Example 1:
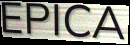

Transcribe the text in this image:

EPICA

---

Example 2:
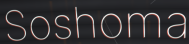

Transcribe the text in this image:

Soshoma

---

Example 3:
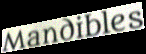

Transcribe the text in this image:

Mandibles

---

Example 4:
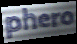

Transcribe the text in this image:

phero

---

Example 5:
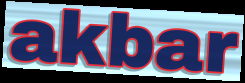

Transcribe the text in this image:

akbar